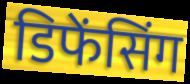
डिफेंसिंग